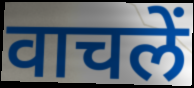
वाचलें